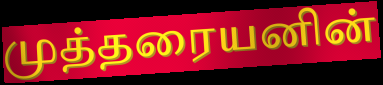
முத்தரையனின்